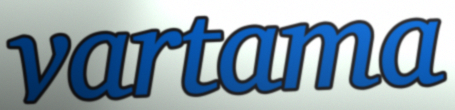
vartama